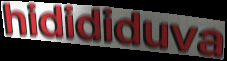
hidididuva